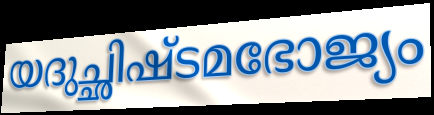
യദുച്ഛിഷ്ടമഭോജ്യം